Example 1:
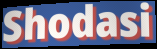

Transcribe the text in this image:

Shodasi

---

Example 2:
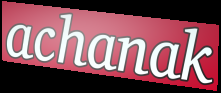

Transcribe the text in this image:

achanak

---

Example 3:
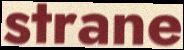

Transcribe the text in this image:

strane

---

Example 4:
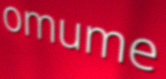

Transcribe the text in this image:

omume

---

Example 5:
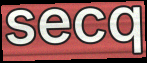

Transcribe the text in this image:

secq